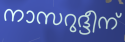
നാസറുദ്ദീന്